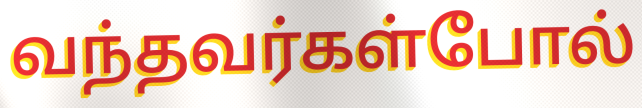
வந்தவர்கள்போல்